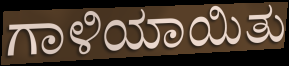
ಗಾಳಿಯಾಯಿತು